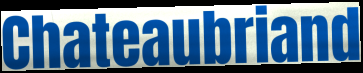
Chateaubriand